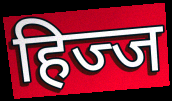
हिज्ज